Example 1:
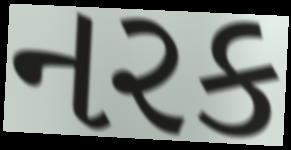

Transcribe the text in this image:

નરક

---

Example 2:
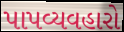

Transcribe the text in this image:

પાપવ્યવહારો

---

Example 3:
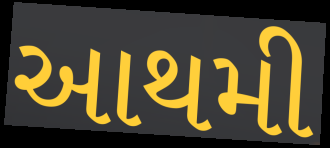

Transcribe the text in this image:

આથમી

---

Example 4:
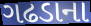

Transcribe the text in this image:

ગઢડાના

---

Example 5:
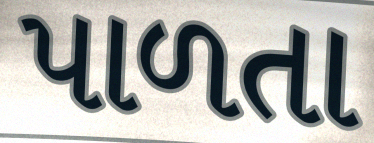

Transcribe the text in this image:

પાળતા